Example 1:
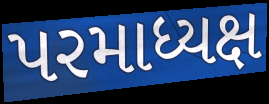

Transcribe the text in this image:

પરમાધ્યક્ષ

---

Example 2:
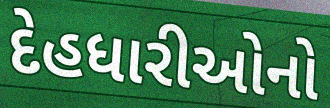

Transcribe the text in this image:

દેહધારીઓનો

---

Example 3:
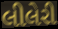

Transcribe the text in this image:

લીલેરી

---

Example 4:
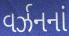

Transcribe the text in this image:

વર્ઝનનાં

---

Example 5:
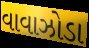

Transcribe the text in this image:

વાવાઝોડા